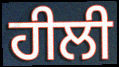
ਹੀਲੀ